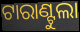
ଟାରାଣ୍ଟୁଲା